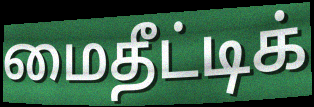
மைதீட்டிக்